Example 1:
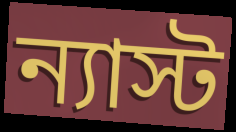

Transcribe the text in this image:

ন্যাস্ট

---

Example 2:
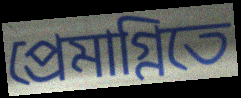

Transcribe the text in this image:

প্রেমাগ্নিতে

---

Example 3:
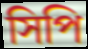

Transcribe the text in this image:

সিপি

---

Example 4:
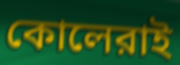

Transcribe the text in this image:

কোলেরাই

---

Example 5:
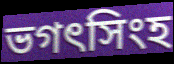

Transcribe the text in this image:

ভগৎসিংহ